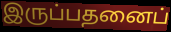
இருப்பதனைப்